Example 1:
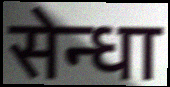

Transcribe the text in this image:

सेन्धा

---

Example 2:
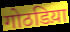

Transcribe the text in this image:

गोठडिय़ा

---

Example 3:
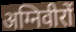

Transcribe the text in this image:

अग्निवीरों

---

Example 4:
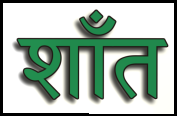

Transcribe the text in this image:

शाँत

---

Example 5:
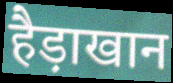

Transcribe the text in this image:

हैड़ाखान